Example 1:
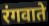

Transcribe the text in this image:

रंगवाते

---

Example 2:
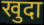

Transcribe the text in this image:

खुदा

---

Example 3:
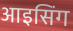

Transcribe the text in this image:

आइसिंग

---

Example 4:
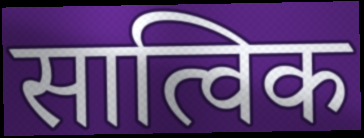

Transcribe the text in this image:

सात्विक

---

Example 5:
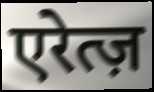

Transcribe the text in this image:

एरेत्ज़